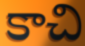
కాచి